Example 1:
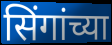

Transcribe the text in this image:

सिंगांच्या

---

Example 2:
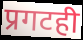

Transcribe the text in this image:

प्रगटही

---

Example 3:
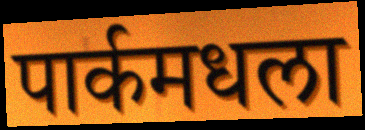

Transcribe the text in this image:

पार्कमधला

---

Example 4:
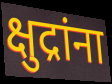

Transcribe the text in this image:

क्षुद्रांना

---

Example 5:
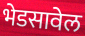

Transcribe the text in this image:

भेडसावेल